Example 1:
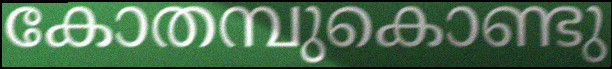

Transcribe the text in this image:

കോതമ്പുകൊണ്ടു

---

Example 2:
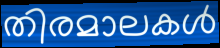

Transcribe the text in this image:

തിരമാലകൾ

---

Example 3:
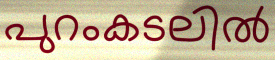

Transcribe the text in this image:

പുറംകടലിൽ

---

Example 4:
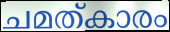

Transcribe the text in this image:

ചമത്കാരം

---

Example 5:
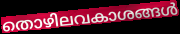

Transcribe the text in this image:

തൊഴിലവകാശങ്ങൾ